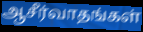
ஆசீர்வாதங்கள்